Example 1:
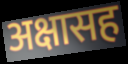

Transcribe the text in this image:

अक्षासह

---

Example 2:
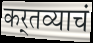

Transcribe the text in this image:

कर्तव्याचं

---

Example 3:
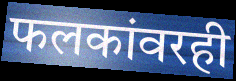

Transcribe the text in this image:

फलकांवरही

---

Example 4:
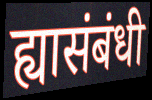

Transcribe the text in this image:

ह्यासंबंधी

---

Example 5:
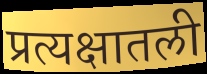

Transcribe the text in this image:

प्रत्यक्षातली